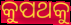
କୁପଥକୁ